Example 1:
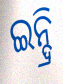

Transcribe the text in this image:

ଇନ୍ଦ୍ରି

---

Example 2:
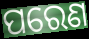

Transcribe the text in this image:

ପରେଣ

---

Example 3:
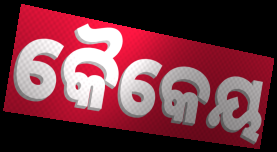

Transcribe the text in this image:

କୈକେୟ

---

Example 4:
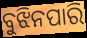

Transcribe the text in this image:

ବୁଝିନପାରି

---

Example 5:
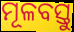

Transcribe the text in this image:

ମୂଳବସ୍ତୁ